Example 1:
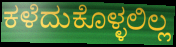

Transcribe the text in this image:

ಕಳೆದುಕೊಳ್ಳಲಿಲ್ಲ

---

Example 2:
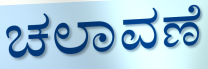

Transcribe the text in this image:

ಚಲಾವಣೆ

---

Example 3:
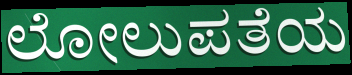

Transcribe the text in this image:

ಲೋಲುಪತೆಯ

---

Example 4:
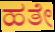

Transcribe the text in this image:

ಹತೇ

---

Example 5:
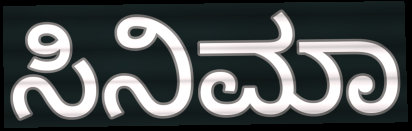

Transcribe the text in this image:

ಸಿನಿಮಾ